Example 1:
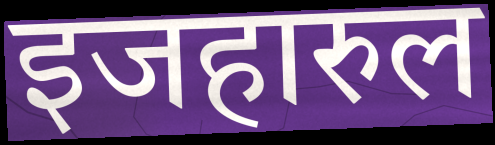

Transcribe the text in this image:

इजहारुल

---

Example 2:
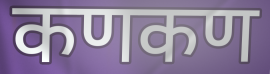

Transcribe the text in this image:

कणकण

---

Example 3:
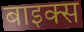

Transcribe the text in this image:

बाइक्स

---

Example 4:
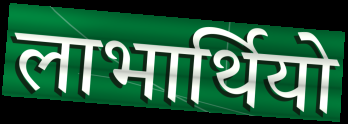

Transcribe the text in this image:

लाभार्थियो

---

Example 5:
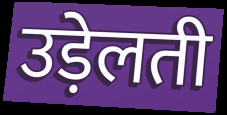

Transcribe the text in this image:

उड़ेलती